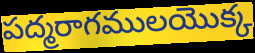
పద్మరాగములయొక్క